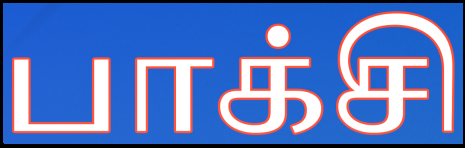
பாக்சி